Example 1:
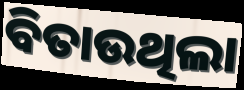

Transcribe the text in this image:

ବିତାଉଥିଲା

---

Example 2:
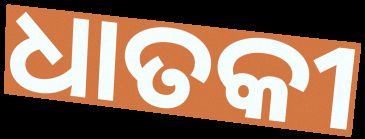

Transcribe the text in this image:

ଧାତକୀ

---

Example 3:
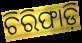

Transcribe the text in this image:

ଚିରିଫାଡ଼ି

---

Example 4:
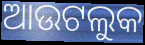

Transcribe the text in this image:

ଆଉଟଲୁକ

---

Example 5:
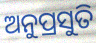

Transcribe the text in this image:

ଅନୁପ୍ରସୁତି